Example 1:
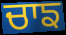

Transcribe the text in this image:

ਚਾਙ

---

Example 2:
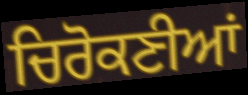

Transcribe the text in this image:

ਚਿਰੋਕਣੀਆਂ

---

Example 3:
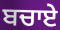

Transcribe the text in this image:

ਬਚਾਏ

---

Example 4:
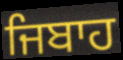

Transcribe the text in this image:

ਜਿਬਾਹ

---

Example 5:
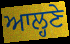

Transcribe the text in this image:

ਆਲ੍ਹਣੇ